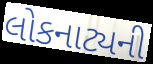
લોકનાટ્યની